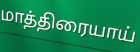
மாத்திரையாய்